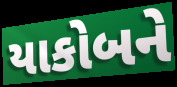
યાકોબને